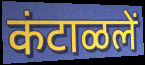
कंटाळलें